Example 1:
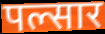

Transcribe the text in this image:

पल्सार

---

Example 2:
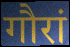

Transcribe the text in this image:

गौरां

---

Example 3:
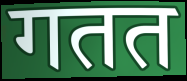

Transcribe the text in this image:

गतत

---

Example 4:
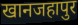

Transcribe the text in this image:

खानजहापुर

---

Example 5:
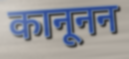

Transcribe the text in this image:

कानूनन